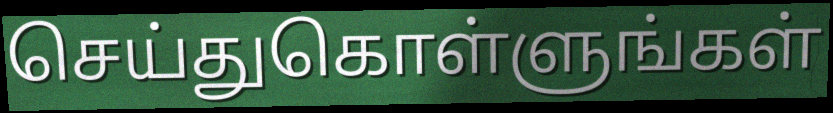
செய்துகொள்ளுங்கள்